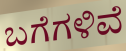
ಬಗೆಗಳಿವೆ